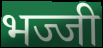
भज्जी